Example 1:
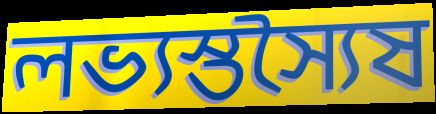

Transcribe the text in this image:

লভ্যস্তস্যৈষ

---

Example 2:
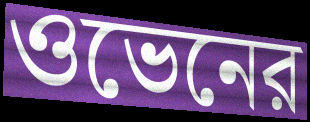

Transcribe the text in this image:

ওভেনের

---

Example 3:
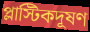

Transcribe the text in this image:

প্লাস্টিকদূষণ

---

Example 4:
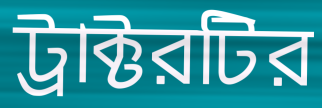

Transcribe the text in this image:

ট্রাক্টরটির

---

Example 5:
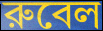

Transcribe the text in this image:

রুবেল